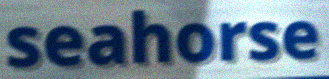
seahorse